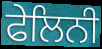
ਫੇਲਿਨੀ